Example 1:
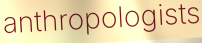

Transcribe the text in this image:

anthropologists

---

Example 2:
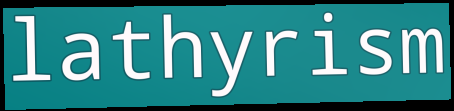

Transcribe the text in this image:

lathyrism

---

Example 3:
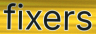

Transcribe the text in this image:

fixers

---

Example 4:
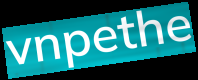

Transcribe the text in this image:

vnpethe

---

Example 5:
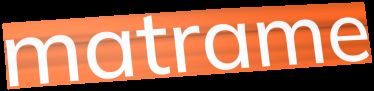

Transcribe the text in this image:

matrame